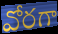
వోరగా